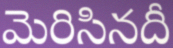
మెరిసినదీ